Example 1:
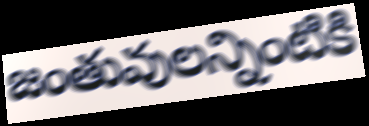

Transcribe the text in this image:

జంతువులన్నింటికి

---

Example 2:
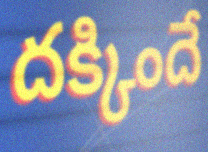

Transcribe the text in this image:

దక్కిందే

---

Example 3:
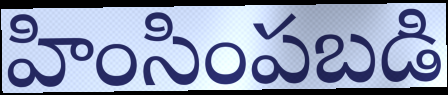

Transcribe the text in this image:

హింసింపబడి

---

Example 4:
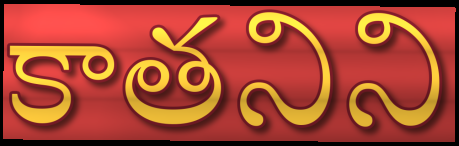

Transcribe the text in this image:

కాతనిని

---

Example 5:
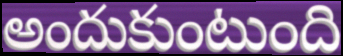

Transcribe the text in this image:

అందుకుంటుంది